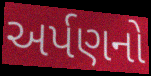
અર્પણનો